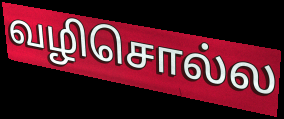
வழிசொல்ல